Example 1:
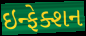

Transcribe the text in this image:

ઇન્ફેક્શન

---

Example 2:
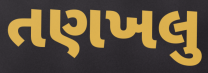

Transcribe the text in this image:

તણખલુ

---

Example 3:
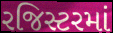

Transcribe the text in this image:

રજિસ્ટરમાં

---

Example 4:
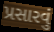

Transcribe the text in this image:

પ્રસારવું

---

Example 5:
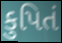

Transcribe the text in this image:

કુપિતં